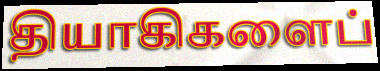
தியாகிகளைப்